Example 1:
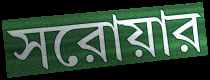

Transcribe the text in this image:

সরোয়ার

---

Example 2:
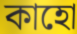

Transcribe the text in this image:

কাহো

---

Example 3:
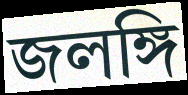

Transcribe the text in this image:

জলঙ্গি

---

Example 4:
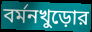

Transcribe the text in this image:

বর্মনখুড়োর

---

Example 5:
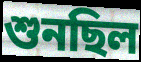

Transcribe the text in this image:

শুনছিল